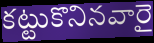
కట్టుకొనినవారై